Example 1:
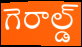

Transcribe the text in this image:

గెరాల్డ్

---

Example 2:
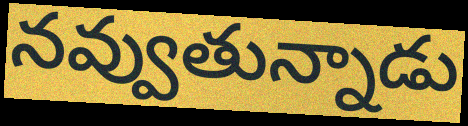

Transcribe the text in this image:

నవ్వుతున్నాడు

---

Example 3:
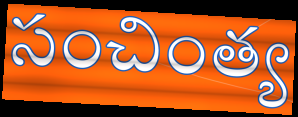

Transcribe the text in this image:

సంచింత్య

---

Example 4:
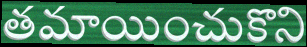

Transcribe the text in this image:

తమాయించుకొని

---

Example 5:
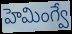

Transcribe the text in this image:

హెమింగ్వే